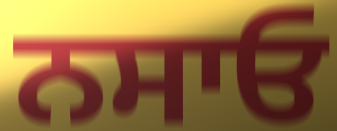
ਨਸਾਓ